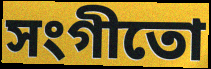
সংগীতো